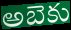
అబెకు